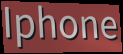
Iphone